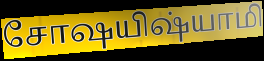
சோஷயிஷ்யாமி